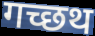
गच्छथ